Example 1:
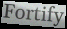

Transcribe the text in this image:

Fortify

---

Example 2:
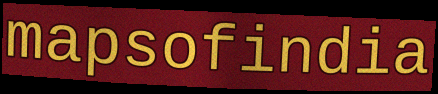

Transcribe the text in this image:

mapsofindia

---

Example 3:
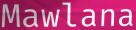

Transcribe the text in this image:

Mawlana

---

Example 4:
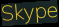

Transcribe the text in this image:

Skype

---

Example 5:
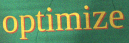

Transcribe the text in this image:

optimize